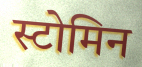
स्टोमिन